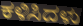
ಕಳಿಸಿದಳು